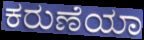
ಕರುಣೆಯಾ